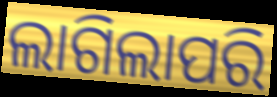
ଲାଗିଲାପରି